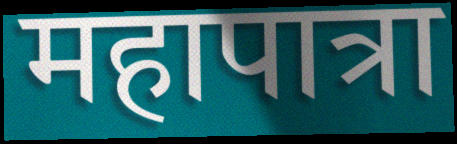
महापात्रा